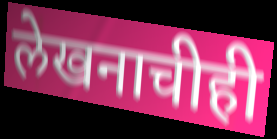
लेखनाचीही